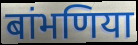
बांभणिया